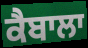
ਕੈਬਾਲਾ